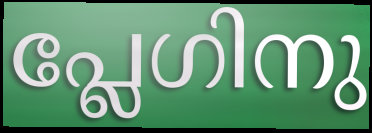
പ്ലേഗിനു